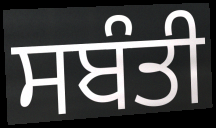
ਸਬੰਤੀ